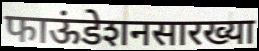
फाऊंडेशनसारख्या